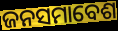
ଜନସମାବେଶ